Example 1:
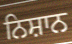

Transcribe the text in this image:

ਨਿਸ਼ਾਨ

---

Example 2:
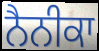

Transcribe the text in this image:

ਨੈਨੀਕਾ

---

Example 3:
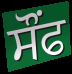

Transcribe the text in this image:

ਸੌਂਫ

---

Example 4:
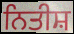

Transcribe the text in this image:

ਨਿਤੀਸ਼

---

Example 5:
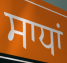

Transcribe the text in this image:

ਸਾਧਾਂ